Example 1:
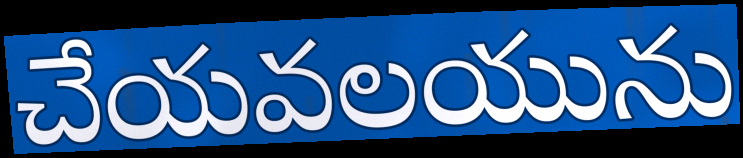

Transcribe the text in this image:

చేయవలయును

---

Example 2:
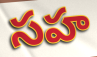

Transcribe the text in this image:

సహ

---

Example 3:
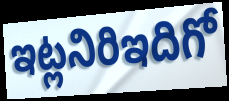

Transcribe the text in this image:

ఇట్లనిరిఇదిగో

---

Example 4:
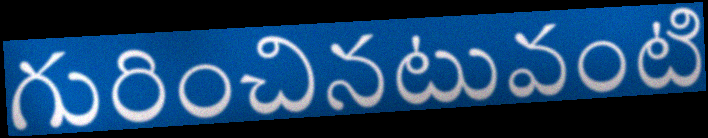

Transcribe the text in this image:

గురించినటువంటి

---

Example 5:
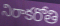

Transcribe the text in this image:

నిరాకరోతి